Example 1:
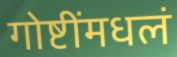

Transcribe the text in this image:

गोष्टींमधलं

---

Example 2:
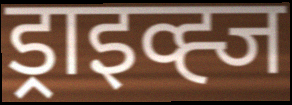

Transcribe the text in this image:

ड्राइव्ह्ज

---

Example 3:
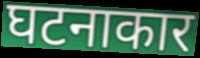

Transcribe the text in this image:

घटनाकार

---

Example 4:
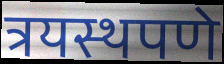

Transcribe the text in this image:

त्रयस्थपणे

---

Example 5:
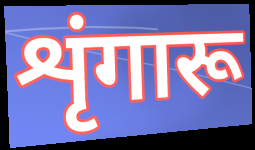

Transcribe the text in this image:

शृंगारू